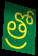
త్రో